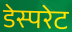
डेस्परेट